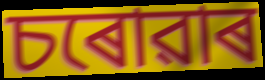
চৰোৱাৰ